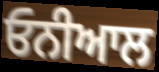
ਓਨੀਆਲ